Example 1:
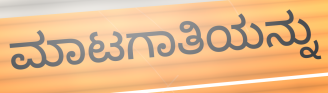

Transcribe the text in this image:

ಮಾಟಗಾತಿಯನ್ನು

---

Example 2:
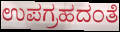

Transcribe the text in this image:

ಉಪಗ್ರಹದಂತೆ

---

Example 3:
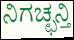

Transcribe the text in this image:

ನಿಗಚ್ಛನ್ತಿ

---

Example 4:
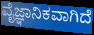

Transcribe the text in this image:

ವೈಜ್ಞಾನಿಕವಾಗಿದೆ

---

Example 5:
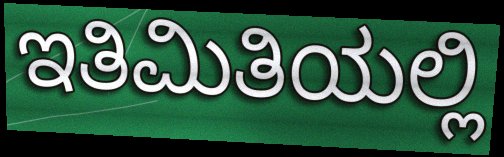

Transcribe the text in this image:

ಇತಿಮಿತಿಯಲ್ಲಿ